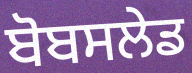
ਬੋਬਸਲੇਡ